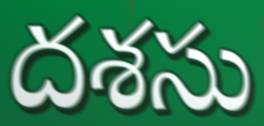
దశసు